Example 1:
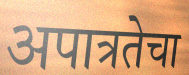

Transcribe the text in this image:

अपात्रतेचा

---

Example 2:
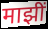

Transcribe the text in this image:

माझीं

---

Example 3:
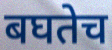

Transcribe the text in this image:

बघतेच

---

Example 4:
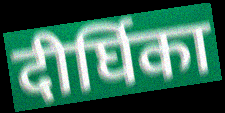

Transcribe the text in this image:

दीर्घिका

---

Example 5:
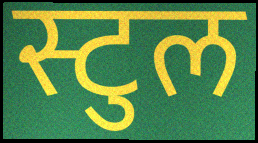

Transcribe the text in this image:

स्टुल